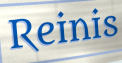
Reinis